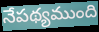
నేపథ్యముంది